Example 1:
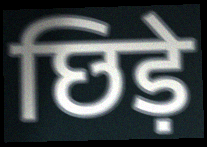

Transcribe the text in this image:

छिड़े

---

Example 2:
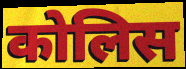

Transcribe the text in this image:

कोलिस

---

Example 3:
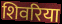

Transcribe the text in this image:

शिवरिया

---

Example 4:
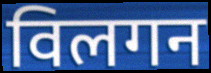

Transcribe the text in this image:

विलगन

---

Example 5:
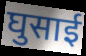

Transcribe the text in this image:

घुसाई